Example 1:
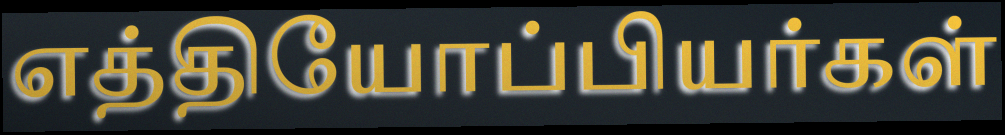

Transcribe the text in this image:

எத்தியோப்பியர்கள்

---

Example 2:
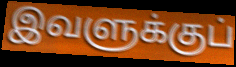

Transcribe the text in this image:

இவளுக்குப்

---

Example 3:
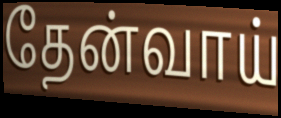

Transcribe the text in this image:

தேன்வாய்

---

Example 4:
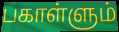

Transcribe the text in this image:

பகாள்ளும்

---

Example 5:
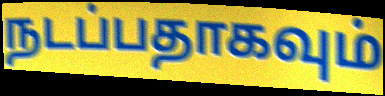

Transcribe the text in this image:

நடப்பதாகவும்